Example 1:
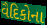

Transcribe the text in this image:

વૈદિકોના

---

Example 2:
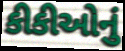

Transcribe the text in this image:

કીકીઓનું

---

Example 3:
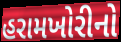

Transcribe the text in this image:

હરામખોરીનો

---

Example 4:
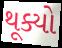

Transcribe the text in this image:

થૂક્યો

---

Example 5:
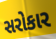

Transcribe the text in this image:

સરોકાર